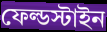
ফেল্ডস্টাইন